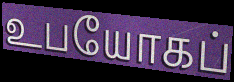
உபயோகப்